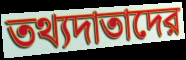
তথ্যদাতাদের